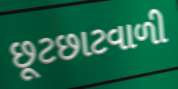
છૂટછાટવાળી